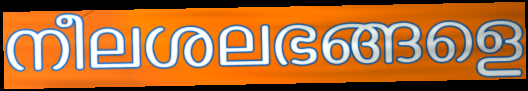
നീലശലഭങ്ങളെ